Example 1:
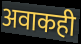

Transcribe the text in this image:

अवाकही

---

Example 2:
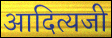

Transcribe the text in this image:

आदित्यजी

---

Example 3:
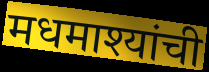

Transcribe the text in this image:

मधमाश्‍यांची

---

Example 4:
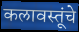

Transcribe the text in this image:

कलावस्तूंचे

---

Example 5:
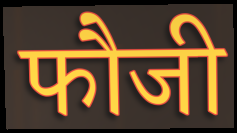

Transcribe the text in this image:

फौजी